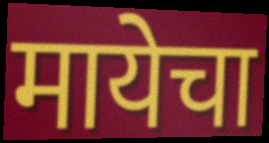
मायेचा